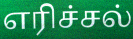
எரிச்சல்